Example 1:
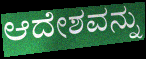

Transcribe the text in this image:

ಆದೇಶವನ್ನು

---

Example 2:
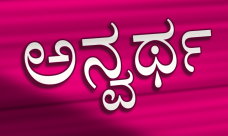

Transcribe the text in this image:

ಅನ್ವರ್ಥ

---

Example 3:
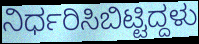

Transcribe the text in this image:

ನಿರ್ಧರಿಸಿಬಿಟ್ಟಿದ್ದಳು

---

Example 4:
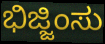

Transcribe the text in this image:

ಭಿಜ್ಜಿಂಸು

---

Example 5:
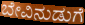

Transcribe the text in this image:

ಬೇವಿನುಡುಗೆ